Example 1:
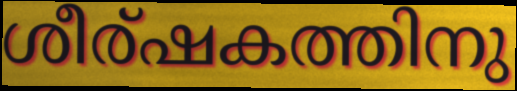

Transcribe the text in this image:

ശീര്ഷകത്തിനു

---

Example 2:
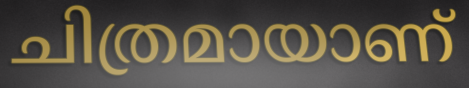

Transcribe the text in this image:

ചിത്രമായാണ്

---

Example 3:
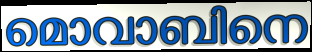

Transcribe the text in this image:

മൊവാബിനെ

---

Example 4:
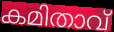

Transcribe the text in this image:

കമിതാവ്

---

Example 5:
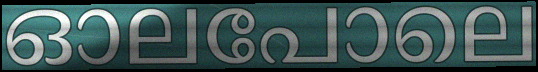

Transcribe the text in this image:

ഓലപോലെ